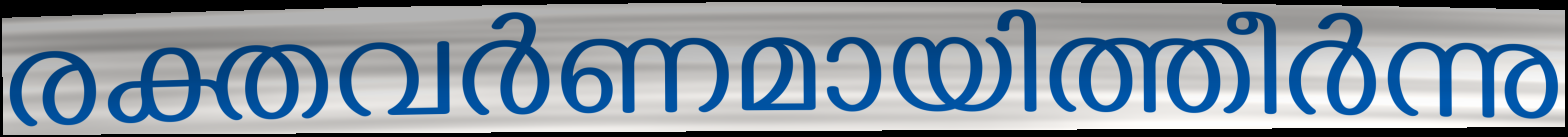
രക്തവർണമായിത്തീർന്നു